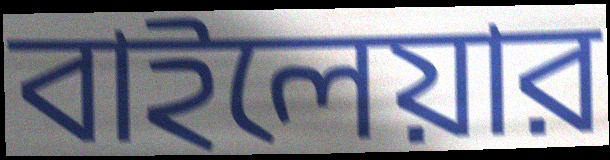
বাইলেয়ার